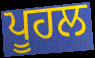
ਪੂਹਲ